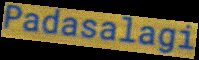
Padasalagi